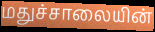
மதுச்சாலையின்